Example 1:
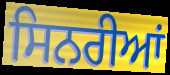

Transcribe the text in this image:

ਸਿਨਰੀਆਂ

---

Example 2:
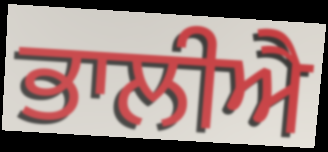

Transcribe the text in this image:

ਭਾਲੀਐ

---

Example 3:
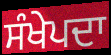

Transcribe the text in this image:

ਸੰਖੇਪਦਾ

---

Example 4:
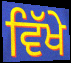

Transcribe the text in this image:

ਵਿੱਖੇ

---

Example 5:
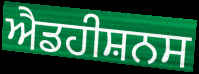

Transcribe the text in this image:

ਐਡਹੀਸ਼ਨਸ